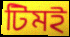
টিমই